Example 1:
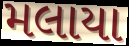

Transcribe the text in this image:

મલાયા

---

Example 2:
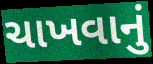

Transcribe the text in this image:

ચાખવાનું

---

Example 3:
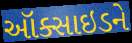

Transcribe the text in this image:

ઑક્સાઇડને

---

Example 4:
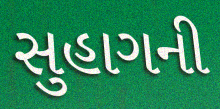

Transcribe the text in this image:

સુહાગની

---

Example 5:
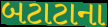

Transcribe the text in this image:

બટાટાના